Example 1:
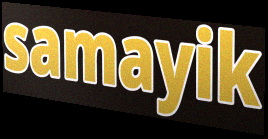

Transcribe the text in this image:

samayik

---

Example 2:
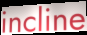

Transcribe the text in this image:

incline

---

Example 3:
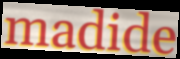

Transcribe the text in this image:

madide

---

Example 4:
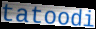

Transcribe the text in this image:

tatoodi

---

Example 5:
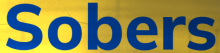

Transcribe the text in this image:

Sobers